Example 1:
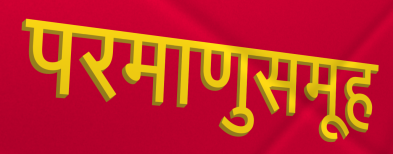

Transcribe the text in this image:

परमाणुसमूह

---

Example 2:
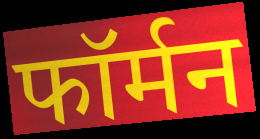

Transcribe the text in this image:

फॉर्मन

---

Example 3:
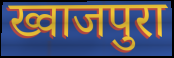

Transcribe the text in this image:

ख्वाजपुरा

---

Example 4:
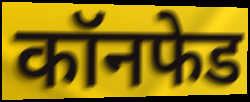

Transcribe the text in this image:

कॉनफेड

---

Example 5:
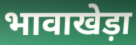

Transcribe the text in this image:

भावाखेड़ा